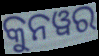
କୁନୱର